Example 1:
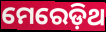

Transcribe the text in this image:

ମେରେଡ଼ିଥ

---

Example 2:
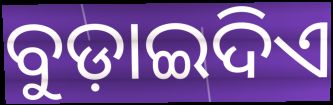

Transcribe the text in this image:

ବୁଡ଼ାଇଦିଏ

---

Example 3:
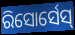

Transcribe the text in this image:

ରିସୋର୍ସେସ୍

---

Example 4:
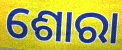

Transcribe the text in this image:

ଶୋରା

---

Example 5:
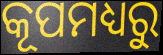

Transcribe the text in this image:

କୂପମଧ୍ୟରୁ